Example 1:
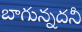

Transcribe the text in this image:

బాగున్నదనీ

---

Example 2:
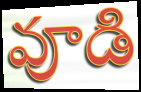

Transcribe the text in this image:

వూడి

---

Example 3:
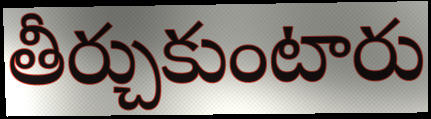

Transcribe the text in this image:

తీర్చుకుంటారు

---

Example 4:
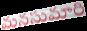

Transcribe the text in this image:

మనసుమారి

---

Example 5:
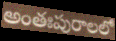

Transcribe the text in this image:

అంతఃపురాలలో